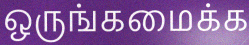
ஒருங்கமைக்க